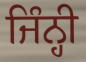
ਜਿੰਨ੍ਹੀ